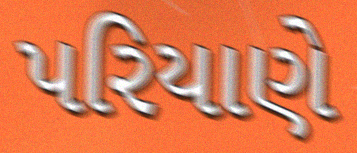
પરિયાણે